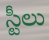
స్టీలు